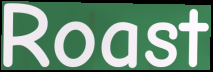
Roast